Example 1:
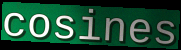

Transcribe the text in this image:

cosines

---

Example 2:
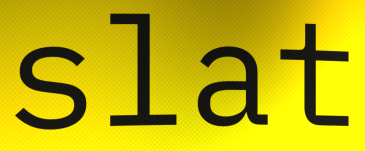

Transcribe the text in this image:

slat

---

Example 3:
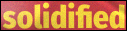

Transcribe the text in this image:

solidified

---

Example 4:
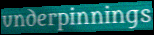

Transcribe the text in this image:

underpinnings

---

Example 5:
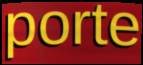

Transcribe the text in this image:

porte